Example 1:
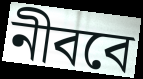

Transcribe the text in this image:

নীববে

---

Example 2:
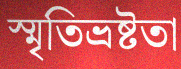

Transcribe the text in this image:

স্মৃতিভ্রষ্টতা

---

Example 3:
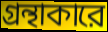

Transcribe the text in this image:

গ্রন্থাকারে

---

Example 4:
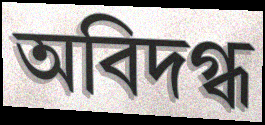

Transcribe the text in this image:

অবিদগ্ধ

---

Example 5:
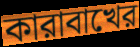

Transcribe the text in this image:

কারাবাখের